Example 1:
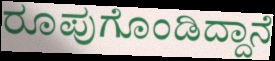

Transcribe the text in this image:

ರೂಪುಗೊಂಡಿದ್ದಾನೆ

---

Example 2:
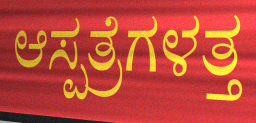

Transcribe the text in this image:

ಆಸ್ಪತ್ರೆಗಳತ್ತ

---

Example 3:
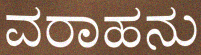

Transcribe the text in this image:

ವರಾಹನು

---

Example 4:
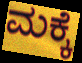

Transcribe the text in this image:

ಮಕ್ಕೆ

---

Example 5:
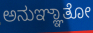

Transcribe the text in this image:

ಅನುಞ್ಞಾತೋ